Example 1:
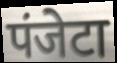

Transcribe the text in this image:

पंजेटा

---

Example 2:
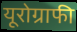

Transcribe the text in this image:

यूरोग्राफी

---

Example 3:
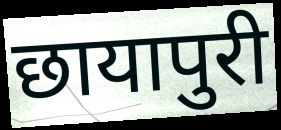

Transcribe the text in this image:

छायापुरी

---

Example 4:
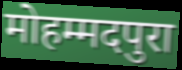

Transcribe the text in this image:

मोहम्मदपुरा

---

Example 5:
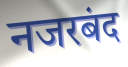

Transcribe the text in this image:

नजरबंद